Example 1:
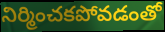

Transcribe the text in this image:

నిర్మించకపోవడంతో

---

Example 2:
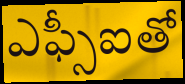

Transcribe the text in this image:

ఎఫ్సీఐతో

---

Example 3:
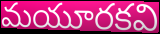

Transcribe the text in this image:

మయూరకవి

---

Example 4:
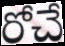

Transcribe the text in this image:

రోచే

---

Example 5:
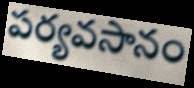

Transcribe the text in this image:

పర్యవసానం